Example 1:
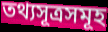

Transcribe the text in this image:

তথ্যসূত্ৰসমূহ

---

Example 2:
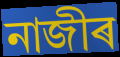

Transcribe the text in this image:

নাজীৰ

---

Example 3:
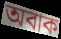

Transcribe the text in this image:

অবাক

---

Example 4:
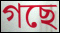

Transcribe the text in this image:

গছে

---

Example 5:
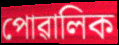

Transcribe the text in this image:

পোৱালিক